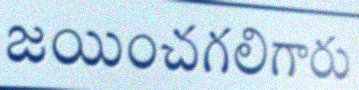
జయించగలిగారు